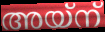
അയ്ന്